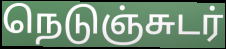
நெடுஞ்சுடர்